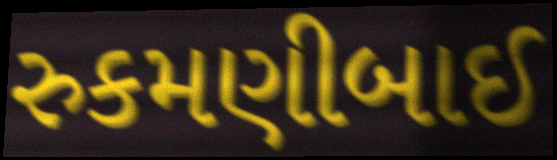
રુકમણીબાઈ